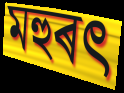
মহুৰৎ